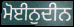
ਮੋਈਨੁਦੀਨ